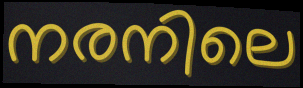
നരനിലെ